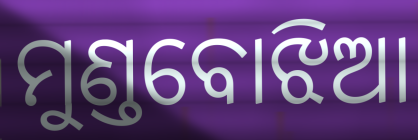
ମୁଣ୍ଡବୋଝିଆ